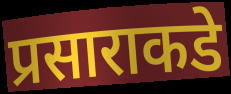
प्रसाराकडे